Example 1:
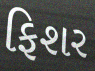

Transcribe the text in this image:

ફિશર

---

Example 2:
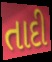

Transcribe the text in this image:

તાદી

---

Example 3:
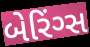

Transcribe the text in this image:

બેરિંગ્સ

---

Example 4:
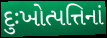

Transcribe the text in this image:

દુઃખોત્પત્તિનાં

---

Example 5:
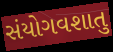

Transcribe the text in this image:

સંયોગવશાતુ